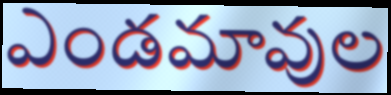
ఎండమావుల